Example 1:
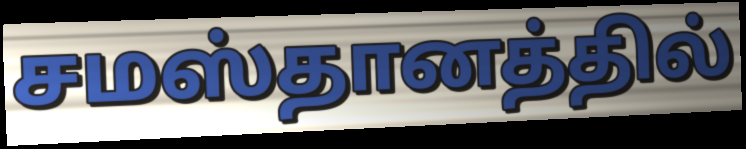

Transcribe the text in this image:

சமஸ்தானத்தில்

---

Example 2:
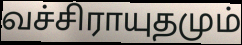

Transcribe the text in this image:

வச்சிராயுதமும்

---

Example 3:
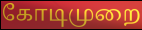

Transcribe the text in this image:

கோடிமுறை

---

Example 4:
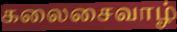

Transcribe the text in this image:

கலைசைவாழ்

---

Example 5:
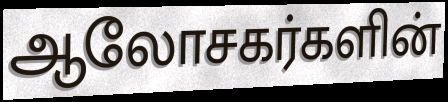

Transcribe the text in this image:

ஆலோசகர்களின்